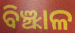
ବିଞ୍ଝାଳ